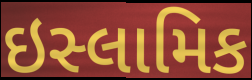
ઇસ્લામિક